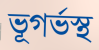
ভূগর্ভস্থ